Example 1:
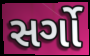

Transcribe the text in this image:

સર્ગો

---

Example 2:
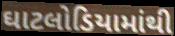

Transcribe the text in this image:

ઘાટલોડિયામાંથી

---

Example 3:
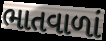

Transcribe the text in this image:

ભાતવાળાં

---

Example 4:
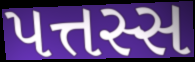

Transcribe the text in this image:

પત્તસ્સ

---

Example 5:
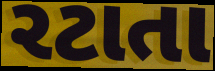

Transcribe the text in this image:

રટાતા